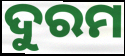
ଦୁରମ